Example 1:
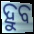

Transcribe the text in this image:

ହୁବ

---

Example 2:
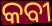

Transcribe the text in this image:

କବୀ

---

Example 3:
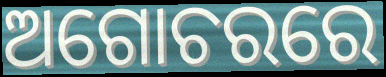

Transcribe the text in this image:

ଅଗୋଚରରେ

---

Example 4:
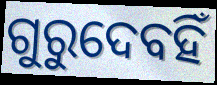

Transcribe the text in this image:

ଗୁରୁଦେବହିଁ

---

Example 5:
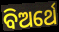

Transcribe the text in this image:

ବିଅର୍ଥେ